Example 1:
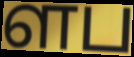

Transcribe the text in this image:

ளப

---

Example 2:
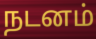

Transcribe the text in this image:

நடனம்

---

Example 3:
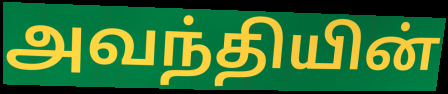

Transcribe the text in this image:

அவந்தியின்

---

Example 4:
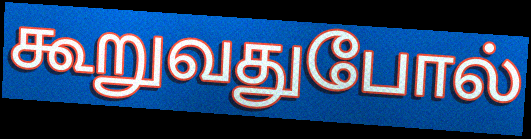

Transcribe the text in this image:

கூறுவதுபோல்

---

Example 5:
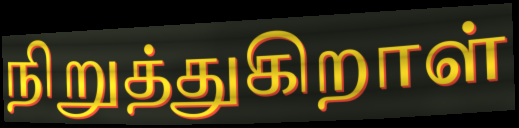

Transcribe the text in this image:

நிறுத்துகிறாள்